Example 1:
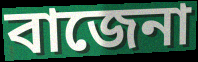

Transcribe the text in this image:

বাজেনা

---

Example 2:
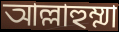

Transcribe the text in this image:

আল্লাহুম্মা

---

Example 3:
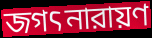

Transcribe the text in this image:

জগৎনারায়ণ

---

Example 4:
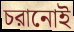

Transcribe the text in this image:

চরানোই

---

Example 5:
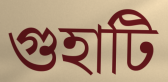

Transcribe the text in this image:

গুহাটি